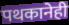
पथकानेही